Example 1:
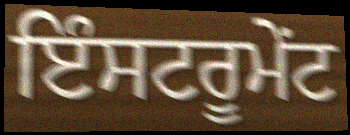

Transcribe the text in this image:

ਇੰਸਟਰੂਮੇਂਟ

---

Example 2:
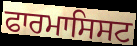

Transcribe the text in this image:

ਫਾਰਮਾਸਿਸਟ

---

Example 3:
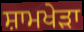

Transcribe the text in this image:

ਸ਼ਾਮਖੇੜਾ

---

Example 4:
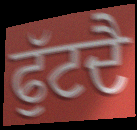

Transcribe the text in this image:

ਫੁੱਟਦੈ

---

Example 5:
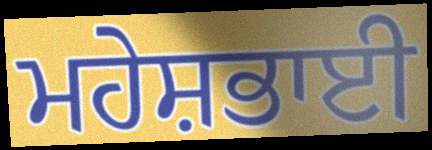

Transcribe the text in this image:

ਮਹੇਸ਼ਭਾਈ